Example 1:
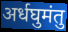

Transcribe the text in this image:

अर्धघुमंतु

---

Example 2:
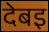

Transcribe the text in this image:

देबइ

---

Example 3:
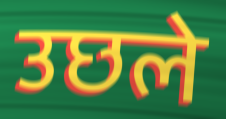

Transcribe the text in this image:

उछले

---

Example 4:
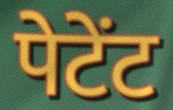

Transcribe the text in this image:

पेटेंट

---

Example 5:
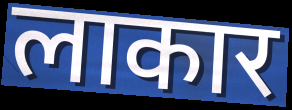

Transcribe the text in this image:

लाकार